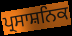
ਪ੍ਰਸਾਸ਼ਨਿਕ